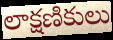
లాక్షణికులు